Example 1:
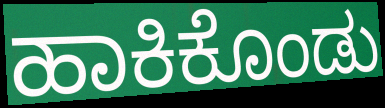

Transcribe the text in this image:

ಹಾಕಿಕೊಂಡು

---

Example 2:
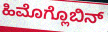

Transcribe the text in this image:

ಹಿಮೊಗ್ಲೊಬಿನ್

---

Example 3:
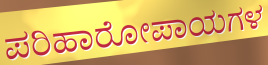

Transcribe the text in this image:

ಪರಿಹಾರೋಪಾಯಗಳ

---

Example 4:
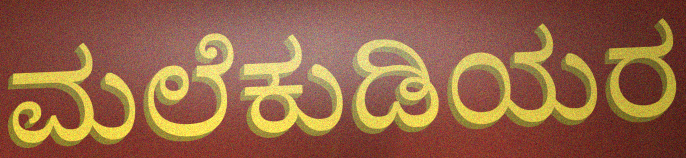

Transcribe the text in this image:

ಮಲೆಕುಡಿಯರ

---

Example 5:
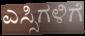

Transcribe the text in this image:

ಎಸ್ಸಿಗಳಿಗೆ